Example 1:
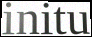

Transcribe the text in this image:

initu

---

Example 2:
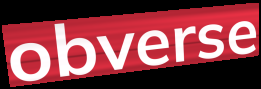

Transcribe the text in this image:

obverse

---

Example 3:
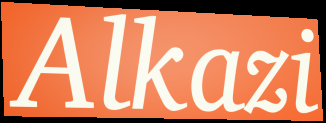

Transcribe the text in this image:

Alkazi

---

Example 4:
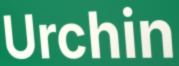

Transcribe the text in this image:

Urchin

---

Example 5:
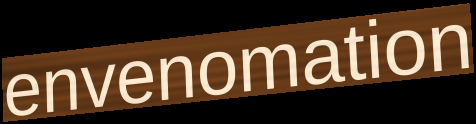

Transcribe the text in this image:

envenomation